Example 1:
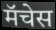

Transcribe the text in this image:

मॅचेस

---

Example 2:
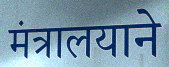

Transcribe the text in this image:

मंत्रालयाने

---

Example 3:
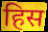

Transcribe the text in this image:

हिस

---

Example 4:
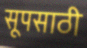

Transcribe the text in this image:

सूपसाठी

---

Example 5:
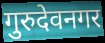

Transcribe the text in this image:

गुरुदेवनगर